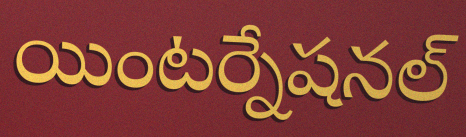
యింటర్నేషనల్